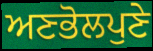
ਅਣਭੋਲਪੁਣੇ